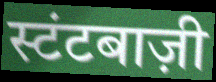
स्टंटबाज़ी